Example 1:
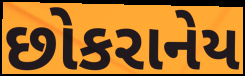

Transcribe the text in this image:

છોકરાનેય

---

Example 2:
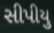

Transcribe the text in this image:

સીપીયુ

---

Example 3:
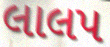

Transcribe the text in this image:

લાલપ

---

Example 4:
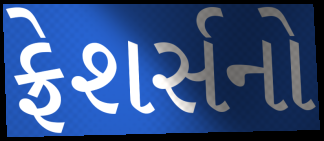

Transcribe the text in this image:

ફ્રેશર્સનો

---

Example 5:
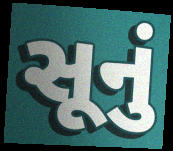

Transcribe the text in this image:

સૂનું